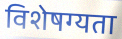
विशेषग्यता